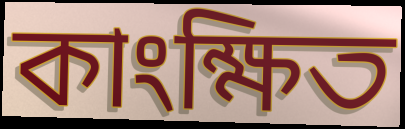
কাংক্ষিত